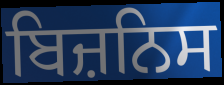
ਬਿਜ਼ਨਿਸ